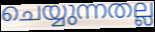
ചെയ്യുന്നതല്ല